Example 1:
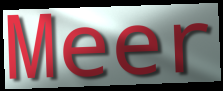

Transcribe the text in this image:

Meer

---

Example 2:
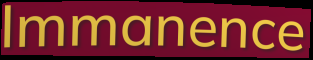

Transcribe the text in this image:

Immanence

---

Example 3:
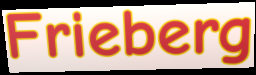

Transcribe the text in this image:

Frieberg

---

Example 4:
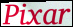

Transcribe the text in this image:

Pixar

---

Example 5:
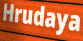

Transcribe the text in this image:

Hrudaya